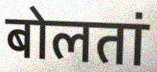
बोलतां